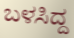
ಬಳಸಿದ್ದ